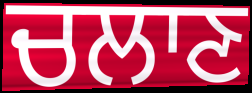
ਚਲਾਣ